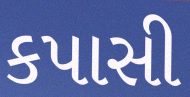
કપાસી